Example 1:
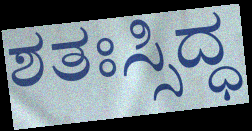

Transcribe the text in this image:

ಶತಃಸ್ಸಿದ್ಧ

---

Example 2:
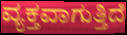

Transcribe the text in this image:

ವ್ಯಕ್ತವಾಗುತ್ತಿದೆ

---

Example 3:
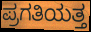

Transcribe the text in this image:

ಪ್ರಗತಿಯತ್ತ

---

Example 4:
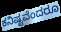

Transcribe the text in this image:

ಕನಿಷ್ಟವೆಂದರೂ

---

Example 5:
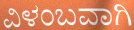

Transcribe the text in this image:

ವಿಳಂಬವಾಗಿ